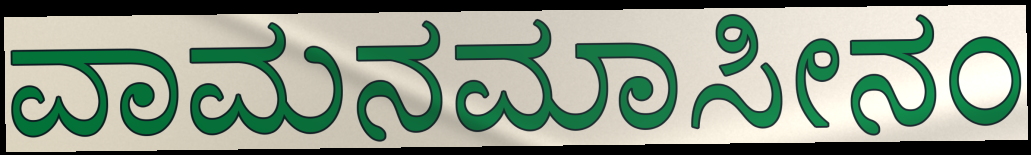
ವಾಮನಮಾಸೀನಂ